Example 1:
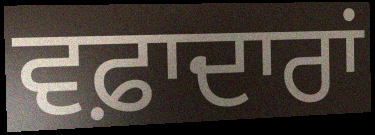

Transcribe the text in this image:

ਵਫ਼ਾਦਾਰਾਂ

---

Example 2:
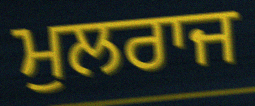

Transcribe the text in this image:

ਮੁਲਰਾਜ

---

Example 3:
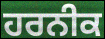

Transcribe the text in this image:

ਹਰਨੀਕ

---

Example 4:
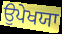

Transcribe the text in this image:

ਉਪੇਖਯਾ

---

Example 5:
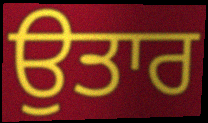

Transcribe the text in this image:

ਉਤਾਰ